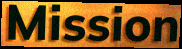
Mission